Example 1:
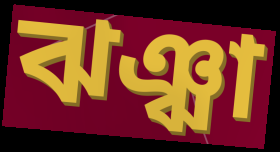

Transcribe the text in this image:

ঝঞ্ঝা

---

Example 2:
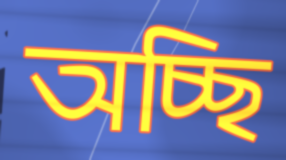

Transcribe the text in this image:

অচ্ছি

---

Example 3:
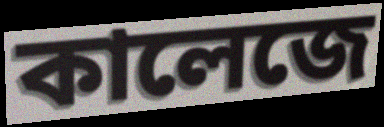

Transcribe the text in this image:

কালেজে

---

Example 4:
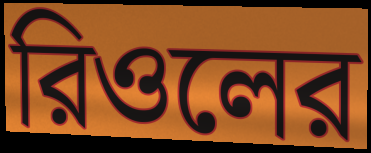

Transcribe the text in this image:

রিওলের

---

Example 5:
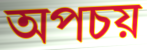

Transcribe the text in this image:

অপচয়